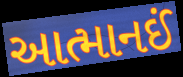
આત્માનઈં